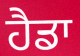
ਹੈਡਾ